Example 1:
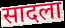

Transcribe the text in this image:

सादला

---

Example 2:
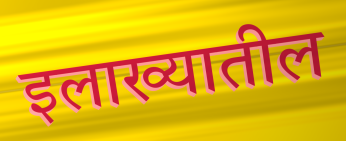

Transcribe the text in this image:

इलाख्यातील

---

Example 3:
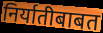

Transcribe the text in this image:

निर्यातीबाबत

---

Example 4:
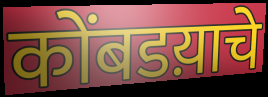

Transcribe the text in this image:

कोंबडय़ाचे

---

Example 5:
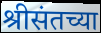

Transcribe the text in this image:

श्रीसंतच्या